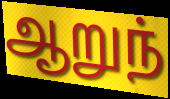
ஆறுந்